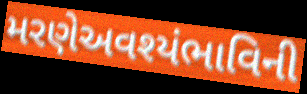
મરણેઅવશ્યંભાવિની